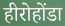
हीरोहोंडा